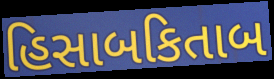
હિસાબકિતાબ